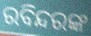
ରବିନ୍ଦରଙ୍କ